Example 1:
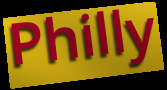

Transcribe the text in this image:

Philly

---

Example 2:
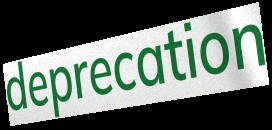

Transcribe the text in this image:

deprecation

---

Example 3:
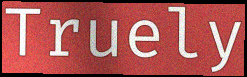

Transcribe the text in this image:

Truely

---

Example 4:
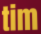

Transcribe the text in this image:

tim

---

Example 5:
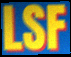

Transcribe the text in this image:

LSF